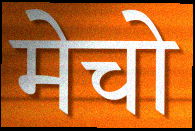
मेचो